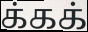
க்கக்